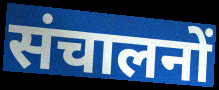
संचालनों